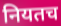
नियतच